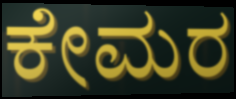
ಕೇಮರ